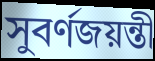
সুবর্ণজয়ন্তী